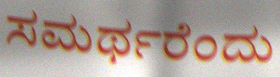
ಸಮರ್ಥರೆಂದು